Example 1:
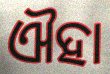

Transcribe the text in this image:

ଐହା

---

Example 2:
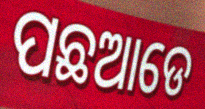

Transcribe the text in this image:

ପଛଆଡେ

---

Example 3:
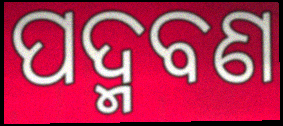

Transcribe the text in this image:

ପଦ୍ମବଣ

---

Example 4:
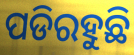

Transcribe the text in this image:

ପଡିରହୁଛି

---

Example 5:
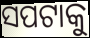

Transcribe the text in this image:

ସପଟାକୁ